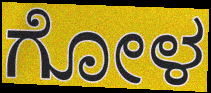
ಗೋಳ